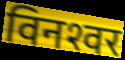
विनश्वर